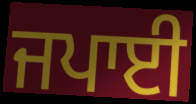
ਜਪਾਈ